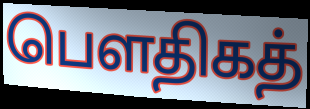
பௌதிகத்